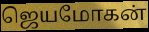
ஜெயமோகன்